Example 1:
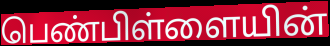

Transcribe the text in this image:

பெண்பிள்ளையின்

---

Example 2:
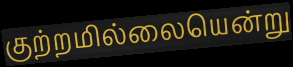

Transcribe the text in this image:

குற்றமில்லையென்று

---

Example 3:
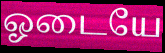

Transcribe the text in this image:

ஓடையே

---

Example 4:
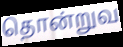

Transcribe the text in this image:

தொன்றுவ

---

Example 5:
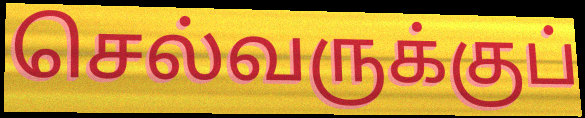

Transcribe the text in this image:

செல்வருக்குப்